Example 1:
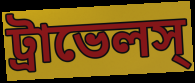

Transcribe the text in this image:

ট্রাভেলস্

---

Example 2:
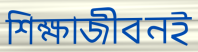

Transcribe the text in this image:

শিক্ষাজীবনই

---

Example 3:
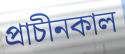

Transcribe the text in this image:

প্রাচীনকাল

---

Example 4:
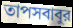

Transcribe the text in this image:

তাপসবাবুর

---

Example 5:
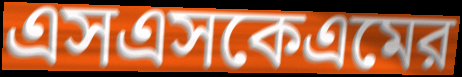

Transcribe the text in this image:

এসএসকেএমের